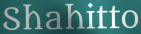
Shahitto